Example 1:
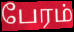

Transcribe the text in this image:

பேரம்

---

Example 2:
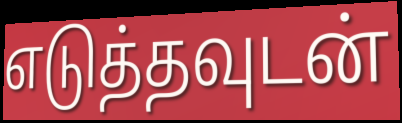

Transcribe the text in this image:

எடுத்தவுடன்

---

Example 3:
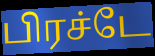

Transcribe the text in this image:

பிரச்டே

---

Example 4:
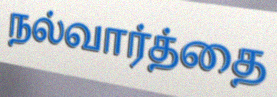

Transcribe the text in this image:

நல்வார்த்தை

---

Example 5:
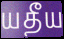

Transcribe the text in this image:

யதீய